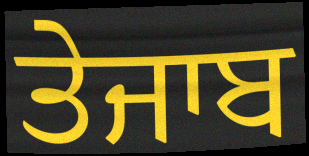
ਤੇਜਾਬ